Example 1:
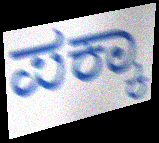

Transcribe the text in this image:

ಪಕ್ಕಾ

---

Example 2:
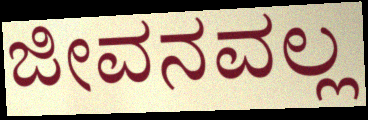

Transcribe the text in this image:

ಜೀವನವಲ್ಲ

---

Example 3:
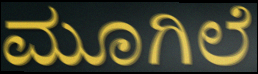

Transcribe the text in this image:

ಮೂಗಿಲೆ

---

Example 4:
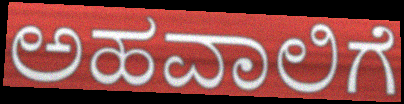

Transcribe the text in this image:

ಅಹವಾಲಿಗೆ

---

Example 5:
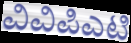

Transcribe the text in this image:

ವಿವಿಪಿಎಟಿ